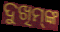
ଦୁଖିମ୍‌ଙ୍କ